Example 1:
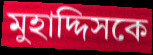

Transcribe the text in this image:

মুহাদ্দিসকে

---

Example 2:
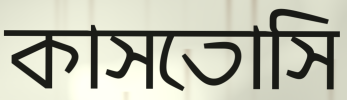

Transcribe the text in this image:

কাসতোসি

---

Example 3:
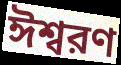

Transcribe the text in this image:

ঈশ্বরণ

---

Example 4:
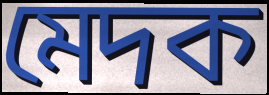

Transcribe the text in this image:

মেদক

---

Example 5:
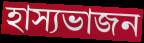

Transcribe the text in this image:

হাস্যভাজন